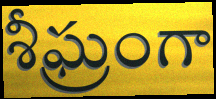
శీఘ్రంగా